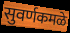
सुवर्णकमळे